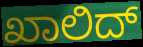
ಖಾಲಿದ್